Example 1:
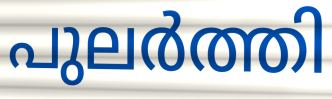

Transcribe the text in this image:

പുലർത്തി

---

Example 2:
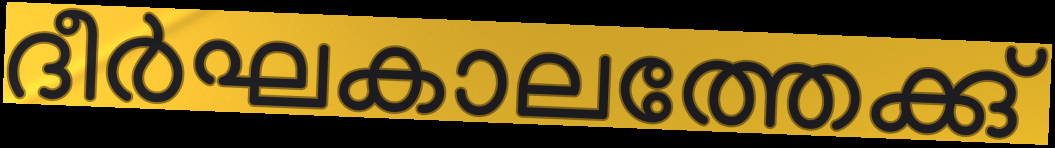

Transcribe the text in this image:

ദീർഘകാലത്തേക്കു്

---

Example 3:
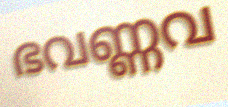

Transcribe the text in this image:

ഭവണ്ണവ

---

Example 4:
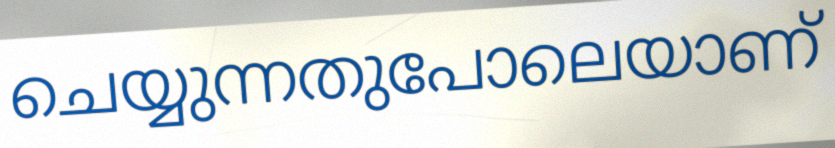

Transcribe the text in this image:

ചെയ്യുന്നതുപോലെയാണ്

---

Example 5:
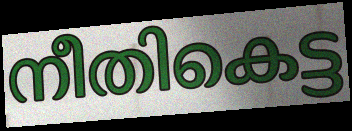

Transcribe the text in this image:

നീതികെട്ട